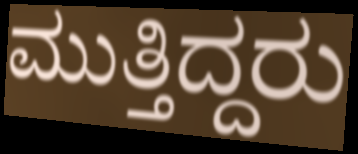
ಮುತ್ತಿದ್ದರು